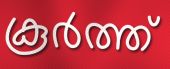
കൂർത്ത്